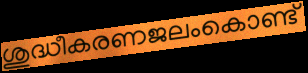
ശുദ്ധീകരണജലംകൊണ്ട്